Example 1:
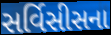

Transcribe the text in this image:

સર્વિસીસના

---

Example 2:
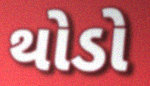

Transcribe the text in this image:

થોડો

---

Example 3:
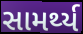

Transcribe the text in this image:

સામર્થ્ય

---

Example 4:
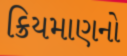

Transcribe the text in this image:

ક્રિયમાણનો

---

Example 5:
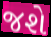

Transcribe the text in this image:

જશે